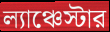
ল্যাঞ্চেস্টার